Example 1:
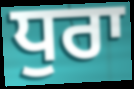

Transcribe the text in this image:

ਧੁਰਾ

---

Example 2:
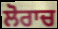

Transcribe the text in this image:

ਲੋਰਾਚ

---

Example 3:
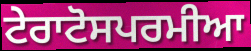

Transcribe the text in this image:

ਟੇਰਾਟੋਸਪਰਮੀਆ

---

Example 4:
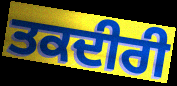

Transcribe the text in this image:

ਤਕਦੀਰੀ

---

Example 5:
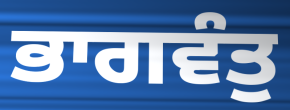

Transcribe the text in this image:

ਭਾਗਵੰਤੁ